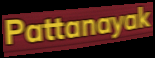
Pattanayak